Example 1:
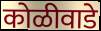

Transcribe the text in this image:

कोळीवाडे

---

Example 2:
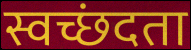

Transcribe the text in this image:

स्वच्छंदता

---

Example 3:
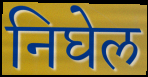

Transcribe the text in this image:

निघेल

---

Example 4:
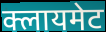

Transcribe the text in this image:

क्लायमेट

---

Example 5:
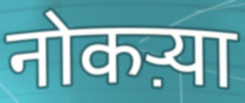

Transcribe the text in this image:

नोकऱ्‍या